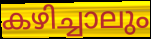
കഴിച്ചാലും